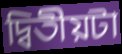
দ্বিতীয়টা